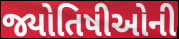
જ્યોતિષીઓની